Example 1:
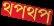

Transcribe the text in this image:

থপথপ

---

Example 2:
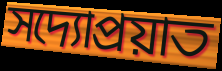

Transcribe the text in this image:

সদ্যোপ্রয়াত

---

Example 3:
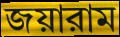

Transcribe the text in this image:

জয়ারাম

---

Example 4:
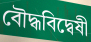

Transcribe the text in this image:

বৌদ্ধবিদ্বেষী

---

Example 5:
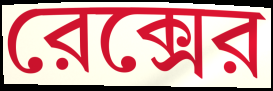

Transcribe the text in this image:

রেক্সের